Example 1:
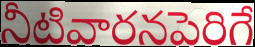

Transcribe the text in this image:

నీటివారనపెరిగే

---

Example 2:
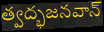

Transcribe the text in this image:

త్వద్భజనవాన్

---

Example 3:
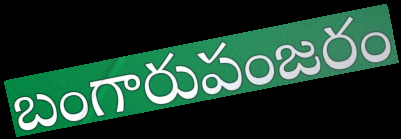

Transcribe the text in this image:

బంగారుపంజరం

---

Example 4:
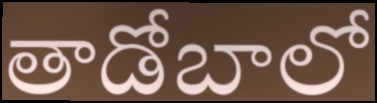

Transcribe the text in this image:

తాడోబాలో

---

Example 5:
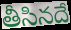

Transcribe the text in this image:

తీసినదే